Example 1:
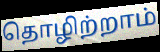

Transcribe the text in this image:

தொழிற்றாம்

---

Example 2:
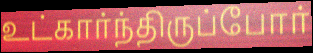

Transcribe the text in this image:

உட்கார்ந்திருப்போர்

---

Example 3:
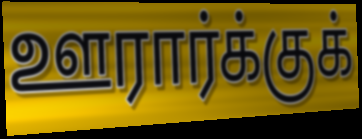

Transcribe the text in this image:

ஊரார்க்குக்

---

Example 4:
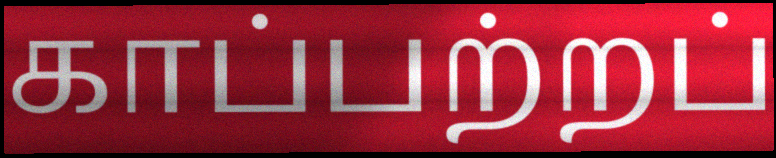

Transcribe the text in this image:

காப்பற்றப்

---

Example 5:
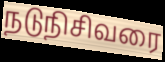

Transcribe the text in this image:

நடுநிசிவரை